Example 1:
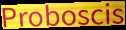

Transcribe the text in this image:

Proboscis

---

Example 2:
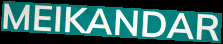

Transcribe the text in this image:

MEIKANDAR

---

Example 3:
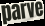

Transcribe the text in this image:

parve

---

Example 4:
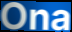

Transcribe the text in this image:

Ona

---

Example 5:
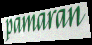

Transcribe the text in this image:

pamaran